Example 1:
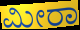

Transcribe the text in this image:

ಮೀರಾ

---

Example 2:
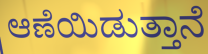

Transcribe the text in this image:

ಆಣೆಯಿಡುತ್ತಾನೆ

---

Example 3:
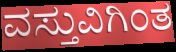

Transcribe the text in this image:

ವಸ್ತುವಿಗಿಂತ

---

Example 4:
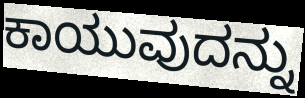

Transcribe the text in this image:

ಕಾಯುವುದನ್ನು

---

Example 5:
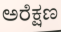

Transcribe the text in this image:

ಅರೆಕ್ಷಣ